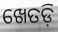
ଖେତଡ଼ି